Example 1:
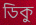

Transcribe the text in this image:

ডিকু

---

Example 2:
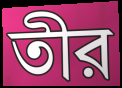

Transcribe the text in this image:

তীর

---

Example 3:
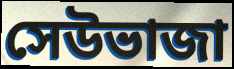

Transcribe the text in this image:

সেউভাজা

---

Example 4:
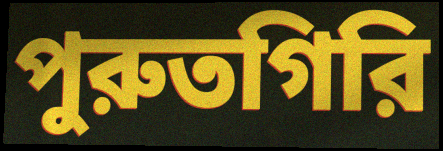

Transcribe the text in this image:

পুরুতগিরি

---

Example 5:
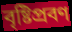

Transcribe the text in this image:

বৃষ্টিপ্রবণ